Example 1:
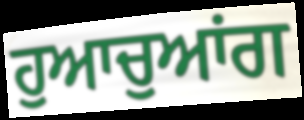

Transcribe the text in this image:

ਹੁਆਚੁਆਂਗ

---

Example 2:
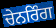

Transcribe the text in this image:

ਚੇਨਰਿੰਗ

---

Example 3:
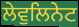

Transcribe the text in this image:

ਲੇਵੁਲਿਨੇਟ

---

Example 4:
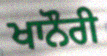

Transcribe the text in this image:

ਖਾਨੌਰੀ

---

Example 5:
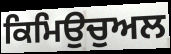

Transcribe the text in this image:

ਕਿਮਿਉਚੁਅਲ